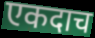
एकदाच